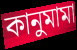
কানুমামা